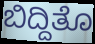
ಬಿದ್ದಿತೊ